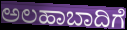
ಅಲಹಾಬಾದಿಗೆ